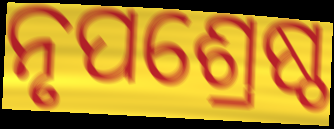
ନୃପଶ୍ରେଷ୍ଠ